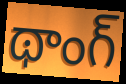
థాంగ్